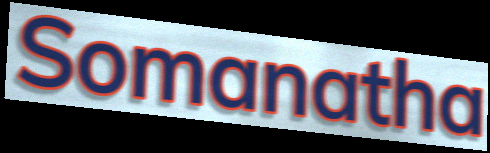
Somanatha